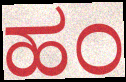
ಹಂ